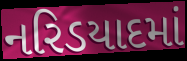
નરિડયાદમાં